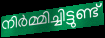
നിർമ്മിച്ചിട്ടുണ്ട്